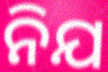
ନିଯ